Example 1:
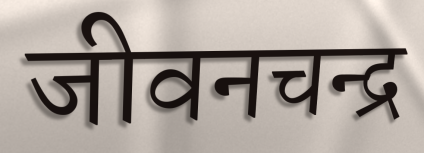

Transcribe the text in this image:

जीवनचन्द्र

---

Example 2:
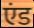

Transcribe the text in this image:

एंड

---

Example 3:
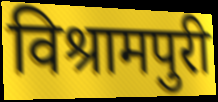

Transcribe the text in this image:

विश्रामपुरी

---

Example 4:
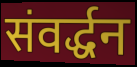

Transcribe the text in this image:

संवर्द्धन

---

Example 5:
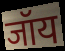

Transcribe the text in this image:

जॉय